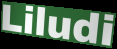
Liludi